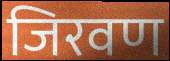
जिरवण